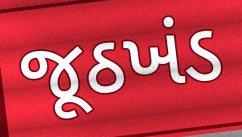
જૂઠખંડ